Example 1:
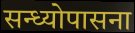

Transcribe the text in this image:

सन्ध्योपासना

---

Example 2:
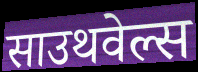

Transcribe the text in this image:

साउथवेल्स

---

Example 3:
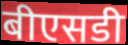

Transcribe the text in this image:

बीएसडी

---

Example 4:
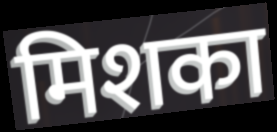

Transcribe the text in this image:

मिशका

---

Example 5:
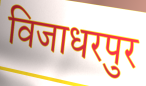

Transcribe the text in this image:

विजाधरपुर